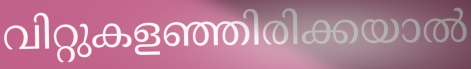
വിറ്റുകളഞ്ഞിരിക്കയാൽ